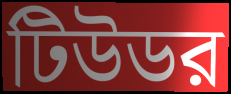
টিউডর